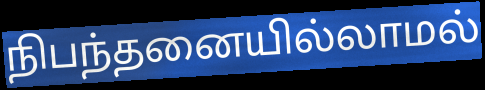
நிபந்தனையில்லாமல்